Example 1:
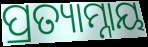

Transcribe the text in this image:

ପ୍ରତ୍ୟାମ୍ନାୟ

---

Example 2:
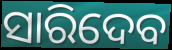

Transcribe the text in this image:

ସାରିଦେବ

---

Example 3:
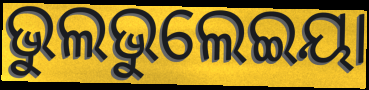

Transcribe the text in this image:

ଭୁଲଭୁଲେଇୟା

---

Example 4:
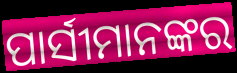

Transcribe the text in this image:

ପାର୍ସୀମାନଙ୍କର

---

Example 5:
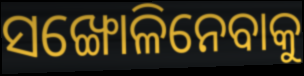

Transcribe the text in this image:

ସଙ୍ଖୋଳିନେବାକୁ